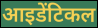
आइडेंटिकल